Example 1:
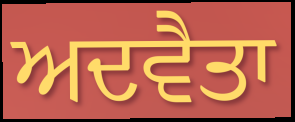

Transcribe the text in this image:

ਅਦਵੈਤਾ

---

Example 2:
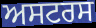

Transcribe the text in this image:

ਅਸਟਰਸ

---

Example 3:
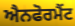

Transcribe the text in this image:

ਐਨਫੋਰਮੈਂਟ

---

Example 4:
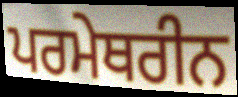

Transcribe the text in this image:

ਪਰਮੇਥਰੀਨ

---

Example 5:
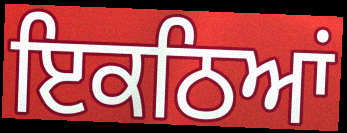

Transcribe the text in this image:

ਇਕਠਿਆਂ